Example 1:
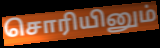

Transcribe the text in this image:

சொரியினும்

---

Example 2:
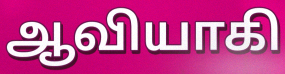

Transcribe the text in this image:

ஆவியாகி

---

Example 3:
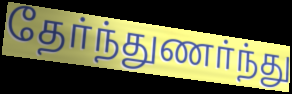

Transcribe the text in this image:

தேர்ந்துணர்ந்து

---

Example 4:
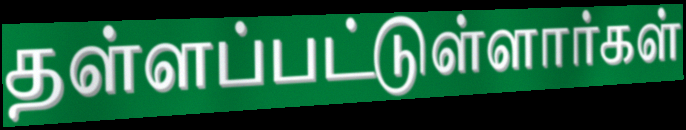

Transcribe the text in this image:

தள்ளப்பட்டுள்ளார்கள்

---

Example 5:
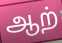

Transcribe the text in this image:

ஆற்